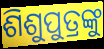
ଶିଶୁପୁତ୍ରଙ୍କୁ